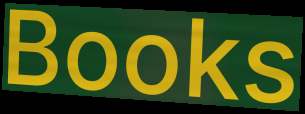
Books